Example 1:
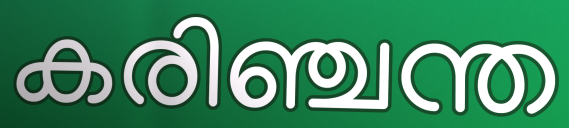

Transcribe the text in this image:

കരിഞ്ചന്ത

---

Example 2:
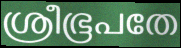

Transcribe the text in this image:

ശ്രീഭൂപതേ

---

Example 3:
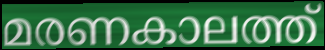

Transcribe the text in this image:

മരണകാലത്ത്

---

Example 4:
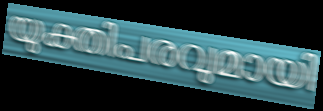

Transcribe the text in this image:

യുക്തിപരവുമായി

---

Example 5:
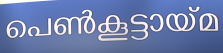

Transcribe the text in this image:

പെൺകൂട്ടായ്മ